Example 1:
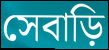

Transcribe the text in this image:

সেবাড়ি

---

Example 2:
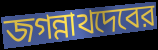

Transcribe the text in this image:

জগন্নাথদেবের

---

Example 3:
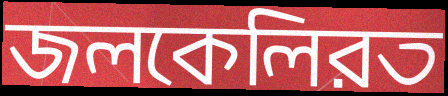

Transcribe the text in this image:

জলকেলিরত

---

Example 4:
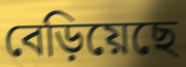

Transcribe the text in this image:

বেড়িয়েছে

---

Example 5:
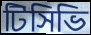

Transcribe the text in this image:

টিসিভি